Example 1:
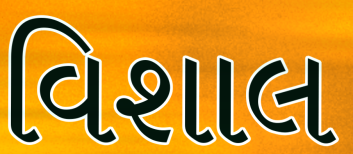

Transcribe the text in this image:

વિશાલ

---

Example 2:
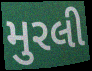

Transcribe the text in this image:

મુરલી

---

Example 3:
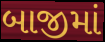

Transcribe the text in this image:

બાજીમાં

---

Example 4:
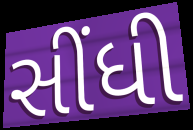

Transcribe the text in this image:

સીંધી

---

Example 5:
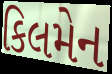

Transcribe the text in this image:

કિલમેન